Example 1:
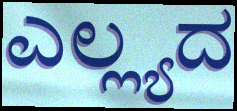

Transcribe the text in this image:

ಎಲ್ಲ್ಯದ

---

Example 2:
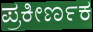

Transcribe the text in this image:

ಪ್ರಕೀರ್ಣಕ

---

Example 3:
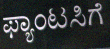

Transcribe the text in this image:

ಫ್ಯಾಂಟಸಿಗೆ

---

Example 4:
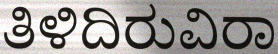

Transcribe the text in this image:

ತಿಳಿದಿರುವಿರಾ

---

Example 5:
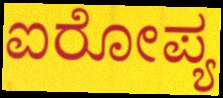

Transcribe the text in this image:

ಐರೋಪ್ಯ